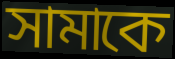
সামাকে